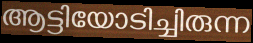
ആട്ടിയോടിച്ചിരുന്ന